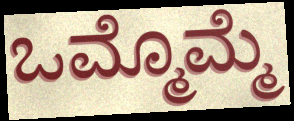
ಒಮ್ಮೊಮ್ಮೆ